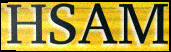
HSAM